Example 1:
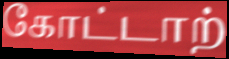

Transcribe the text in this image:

கோட்டாற்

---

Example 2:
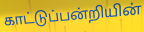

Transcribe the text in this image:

காட்டுப்பன்றியின்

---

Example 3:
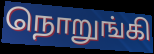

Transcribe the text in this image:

நொறுங்கி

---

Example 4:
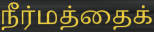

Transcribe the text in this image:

நீர்மத்தைக்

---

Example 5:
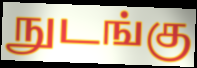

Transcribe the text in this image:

நுடங்கு